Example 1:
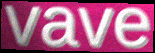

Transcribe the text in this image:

vave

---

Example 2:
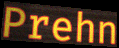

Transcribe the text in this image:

Prehn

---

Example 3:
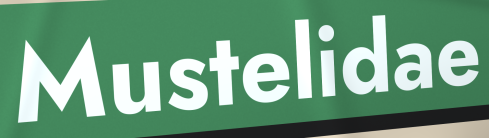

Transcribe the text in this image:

Mustelidae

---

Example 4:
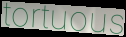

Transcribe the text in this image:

tortuous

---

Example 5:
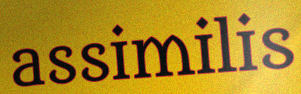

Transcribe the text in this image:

assimilis